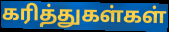
கரித்துகள்கள்